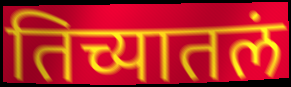
तिच्यातलं